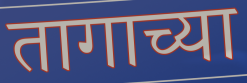
तागाच्या